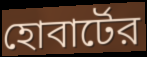
হোবার্টের